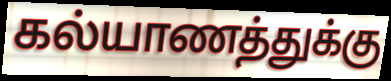
கல்யாணத்துக்கு